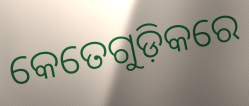
କେତେଗୁଡ଼ିକରେ